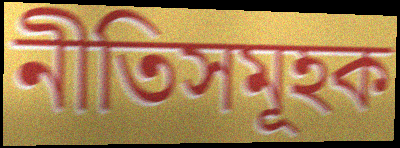
নীতিসমূহক